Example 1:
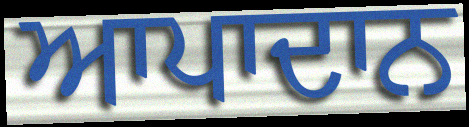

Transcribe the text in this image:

ਆਪਾਦਾਨ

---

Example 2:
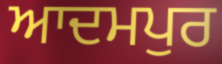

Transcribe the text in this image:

ਆਦਮਪੁਰ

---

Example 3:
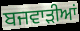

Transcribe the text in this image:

ਬਜਵਾੜੀਆਂ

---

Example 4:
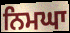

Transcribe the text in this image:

ਨਿਮਘਾ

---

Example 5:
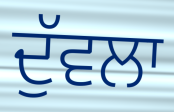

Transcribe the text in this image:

ਦੁੱਵਲਾ